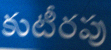
కుటీరపు